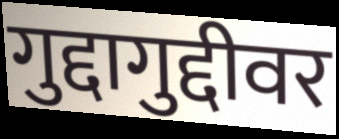
गुद्दागुद्दीवर